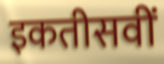
इकतीसवीं